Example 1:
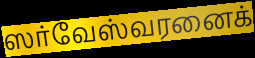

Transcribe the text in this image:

ஸர்வேஸ்வரனைக்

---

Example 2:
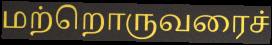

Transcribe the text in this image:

மற்றொருவரைச்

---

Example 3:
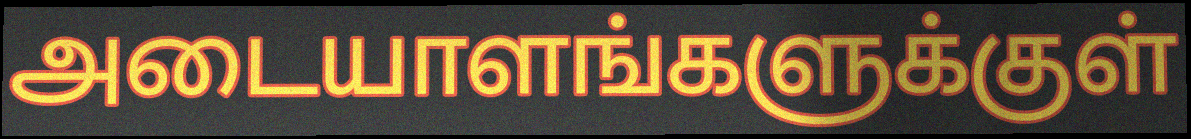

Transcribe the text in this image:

அடையாளங்களுக்குள்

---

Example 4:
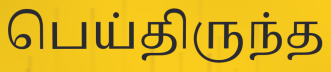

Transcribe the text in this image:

பெய்திருந்த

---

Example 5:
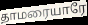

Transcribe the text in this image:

தாமரையாரே